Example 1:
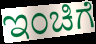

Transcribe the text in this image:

ಇಂಚಿಗೆ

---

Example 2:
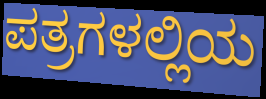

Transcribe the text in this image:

ಪತ್ರಗಳಲ್ಲಿಯ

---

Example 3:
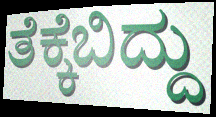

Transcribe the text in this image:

ತೆಕ್ಕೆಬಿದ್ದು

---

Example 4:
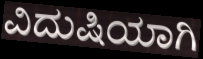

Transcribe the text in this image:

ವಿದುಷಿಯಾಗಿ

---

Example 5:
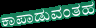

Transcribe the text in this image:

ಕಾಪಾಡುವಂತಹ